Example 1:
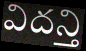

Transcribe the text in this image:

విదన్తి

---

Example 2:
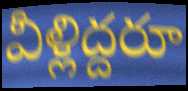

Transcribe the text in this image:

వీళ్లిద్దరూ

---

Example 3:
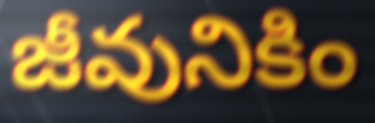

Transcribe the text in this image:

జీవునికిం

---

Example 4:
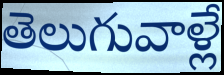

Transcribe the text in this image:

తెలుగువాళ్లే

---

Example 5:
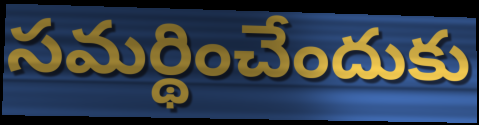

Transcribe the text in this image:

సమర్థించేందుకు